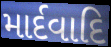
માર્દવાદિ